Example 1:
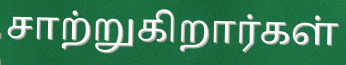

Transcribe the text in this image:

சாற்றுகிறார்கள்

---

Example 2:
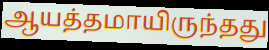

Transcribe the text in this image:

ஆயத்தமாயிருந்தது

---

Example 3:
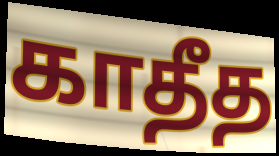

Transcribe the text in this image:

காதீத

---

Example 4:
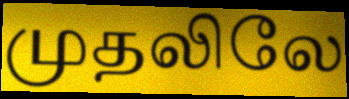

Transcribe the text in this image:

முதலிலே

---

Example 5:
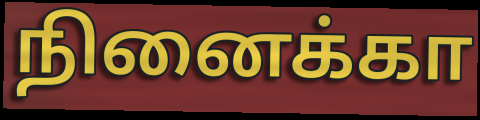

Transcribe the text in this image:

நினைக்கா